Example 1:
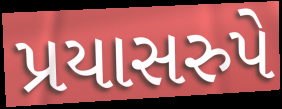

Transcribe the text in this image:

પ્રયાસરુપે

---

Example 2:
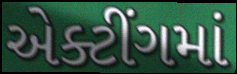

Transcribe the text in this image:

એક્ટીંગમાં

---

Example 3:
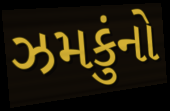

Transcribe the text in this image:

ઝમકુંનો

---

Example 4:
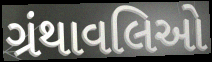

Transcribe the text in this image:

ગ્રંથાવલિઓ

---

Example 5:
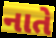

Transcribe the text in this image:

નાતે